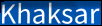
Khaksar